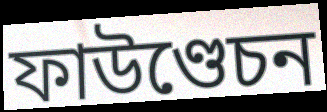
ফাউণ্ডেচন